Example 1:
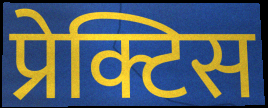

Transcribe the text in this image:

प्रेक्टिस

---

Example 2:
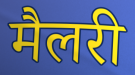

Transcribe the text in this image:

मैलरी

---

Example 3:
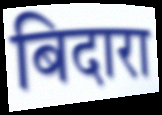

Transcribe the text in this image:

बिदारा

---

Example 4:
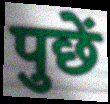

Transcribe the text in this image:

पुछें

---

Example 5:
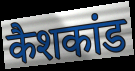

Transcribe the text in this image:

कैशकांड